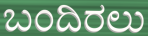
ಬಂದಿರಲು